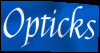
Opticks